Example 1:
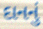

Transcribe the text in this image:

દાનનું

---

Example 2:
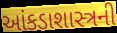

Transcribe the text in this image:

આંકડાશાસ્ત્રની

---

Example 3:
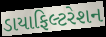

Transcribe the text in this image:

ડાયાફિલ્ટરેશન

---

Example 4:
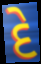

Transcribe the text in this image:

દે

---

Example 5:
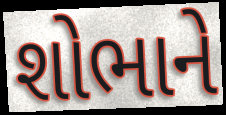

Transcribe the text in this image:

શોભાને